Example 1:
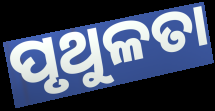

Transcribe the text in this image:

ପୃଥୁଳତା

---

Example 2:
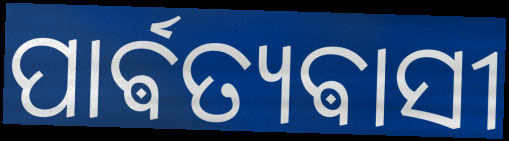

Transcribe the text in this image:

ପାର୍ଵତ୍ୟଵାସୀ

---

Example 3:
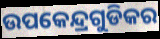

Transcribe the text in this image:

ଉପକେନ୍ଦ୍ରଗୁଡିକର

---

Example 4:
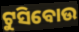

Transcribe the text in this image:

ଟୁସିବୋଉ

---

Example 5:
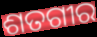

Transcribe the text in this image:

ଶତଗୀର